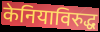
केनियाविरुद्ध